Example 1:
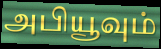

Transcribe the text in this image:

அபியூவும்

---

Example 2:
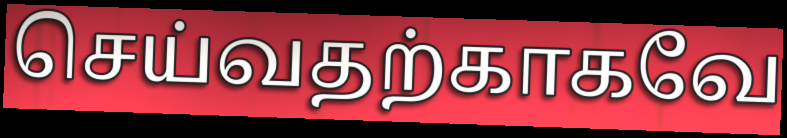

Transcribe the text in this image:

செய்வதற்காகவே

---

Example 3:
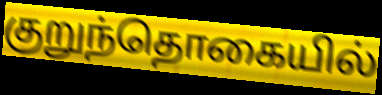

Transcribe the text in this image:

குறுந்தொகையில்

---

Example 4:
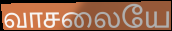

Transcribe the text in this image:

வாசலையே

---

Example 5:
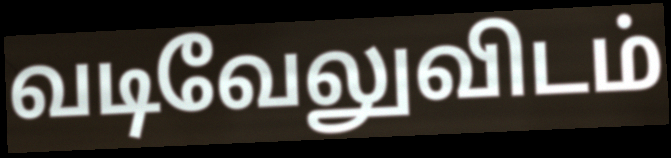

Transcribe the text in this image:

வடிவேலுவிடம்